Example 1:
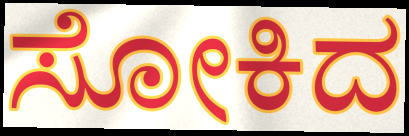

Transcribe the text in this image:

ಸೋಕಿದ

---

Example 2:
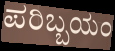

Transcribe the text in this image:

ಪರಿಬ್ಬಯಂ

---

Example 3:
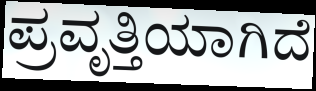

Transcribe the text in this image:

ಪ್ರವೃತ್ತಿಯಾಗಿದೆ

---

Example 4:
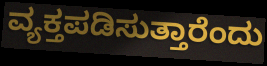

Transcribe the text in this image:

ವ್ಯಕ್ತಪಡಿಸುತ್ತಾರೆಂದು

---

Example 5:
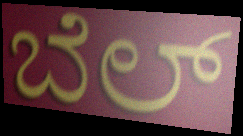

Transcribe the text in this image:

ಬೆಲ್